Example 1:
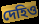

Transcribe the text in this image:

দেহিও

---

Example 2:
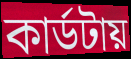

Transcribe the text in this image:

কার্ডটায়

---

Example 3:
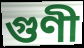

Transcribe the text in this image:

গুণী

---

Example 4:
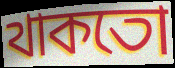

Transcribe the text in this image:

থাকতো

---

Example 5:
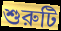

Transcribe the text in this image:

শুরুটি